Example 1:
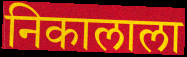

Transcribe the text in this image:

निकालाला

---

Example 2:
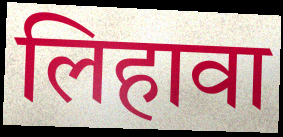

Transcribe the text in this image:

लिहावा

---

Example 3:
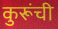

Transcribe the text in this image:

कुरूंची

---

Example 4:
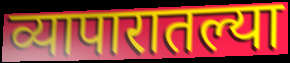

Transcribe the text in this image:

व्यापारातल्या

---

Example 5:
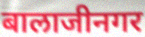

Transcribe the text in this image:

बालाजीनगर